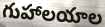
గుహాలయాల